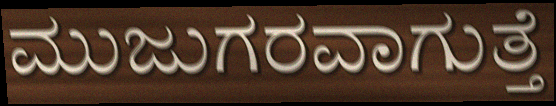
ಮುಜುಗರವಾಗುತ್ತೆ